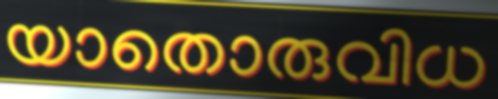
യാതൊരുവിധ